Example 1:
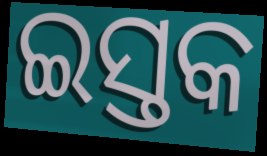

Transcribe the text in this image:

ଇସ୍ତକ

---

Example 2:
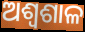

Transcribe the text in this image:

ଅଶ୍ୱଶାଳ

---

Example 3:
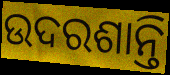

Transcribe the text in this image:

ଉଦରଶାନ୍ତି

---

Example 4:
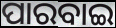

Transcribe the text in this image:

ପାରବାଇ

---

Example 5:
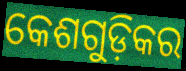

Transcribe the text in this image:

କେଶଗୁଡ଼ିକର